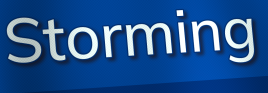
Storming